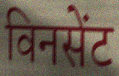
विनसेंट